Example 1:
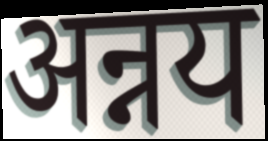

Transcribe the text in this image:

अन्नय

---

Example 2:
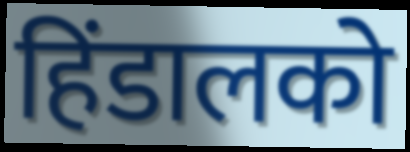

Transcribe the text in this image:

हिंडालको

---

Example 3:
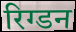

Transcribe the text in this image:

रिग्डन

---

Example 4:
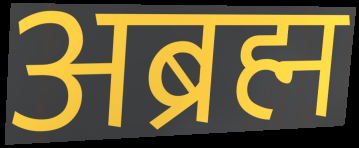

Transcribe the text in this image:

अब्रह्म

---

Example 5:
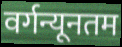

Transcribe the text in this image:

वर्गन्यूनतम